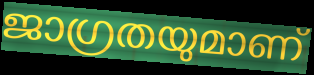
ജാഗ്രതയുമാണ്